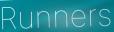
Runners